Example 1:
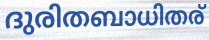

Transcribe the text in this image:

ദുരിതബാധിതര്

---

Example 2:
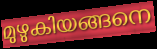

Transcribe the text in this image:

മുഴുകിയങ്ങനെ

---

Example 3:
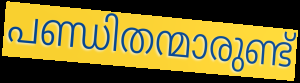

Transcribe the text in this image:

പണ്ഡിതന്മാരുണ്ട്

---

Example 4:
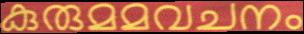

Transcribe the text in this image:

കുരുമമവചനം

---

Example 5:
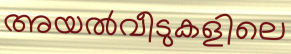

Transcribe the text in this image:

അയൽവീടുകളിലെ